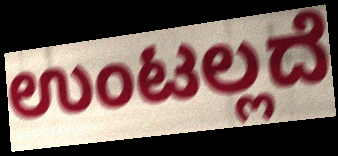
ಉಂಟಲ್ಲದೆ